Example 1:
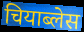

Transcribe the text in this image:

चियाब्लेस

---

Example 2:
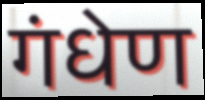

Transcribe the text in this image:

गंधेण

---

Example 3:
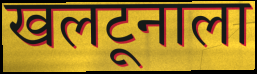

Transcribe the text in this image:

खलटूनाला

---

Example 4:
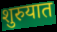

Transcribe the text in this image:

शुरुयात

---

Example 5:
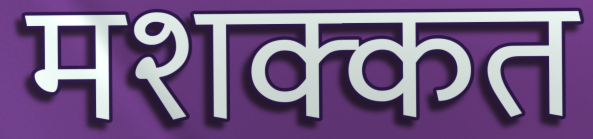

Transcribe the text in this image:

मशक्‍कत